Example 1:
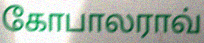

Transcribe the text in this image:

கோபாலராவ்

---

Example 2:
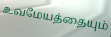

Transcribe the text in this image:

உவமேயத்தையும்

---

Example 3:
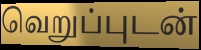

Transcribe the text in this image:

வெறுப்புடன்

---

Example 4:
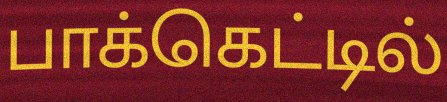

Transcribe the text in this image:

பாக்கெட்டில்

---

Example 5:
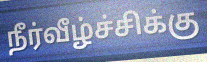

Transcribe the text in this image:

நீர்வீழ்ச்சிக்கு